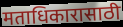
मताधिकारासाठी